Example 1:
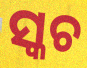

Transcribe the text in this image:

ସ୍କଚ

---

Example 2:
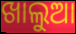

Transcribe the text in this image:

ଖାଲୁଆ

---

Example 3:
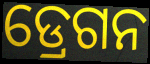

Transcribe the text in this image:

ଡ୍ରେଗନ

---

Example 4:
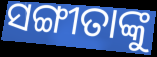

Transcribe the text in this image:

ସଙ୍ଗୀତାଙ୍କୁ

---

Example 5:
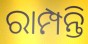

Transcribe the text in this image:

ରାମ୍ପନ୍ତି